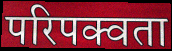
परिपक्‍वता